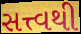
સત્ત્વથી